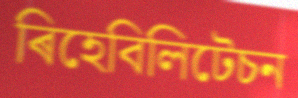
ৰিহেবিলিটেচন